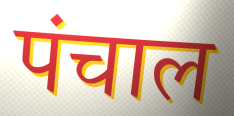
पंचाल